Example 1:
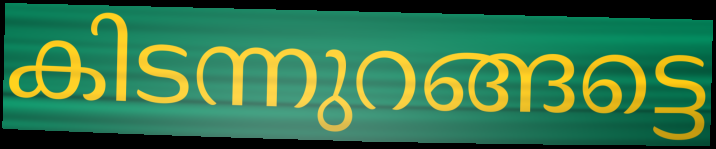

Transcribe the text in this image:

കിടന്നുറങ്ങട്ടെ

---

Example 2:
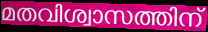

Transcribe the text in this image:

മതവിശ്വാസത്തിന്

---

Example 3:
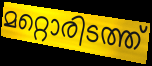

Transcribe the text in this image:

മറ്റൊരിടത്ത്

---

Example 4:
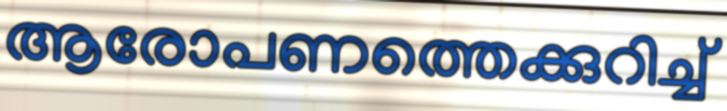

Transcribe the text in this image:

ആരോപണത്തെക്കുറിച്ച്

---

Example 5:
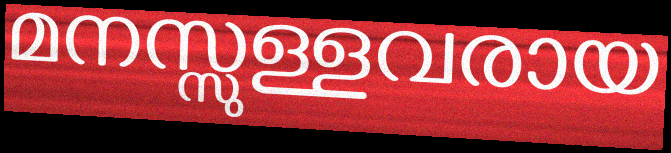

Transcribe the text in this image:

മനസ്സുള്ളവരായ